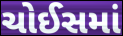
ચોઈસમાં